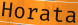
Horata